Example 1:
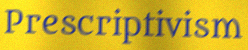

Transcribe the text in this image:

Prescriptivism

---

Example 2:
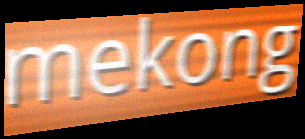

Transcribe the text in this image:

mekong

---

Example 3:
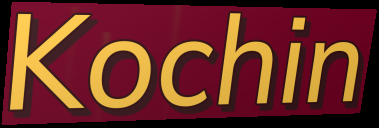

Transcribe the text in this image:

Kochin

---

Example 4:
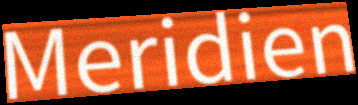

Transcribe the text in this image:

Meridien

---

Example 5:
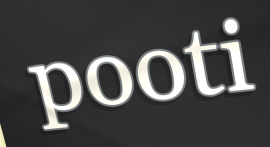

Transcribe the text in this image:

pooti